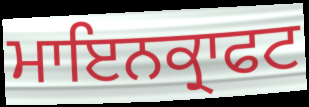
ਮਾਇਨਕ੍ਰਾਫਟ